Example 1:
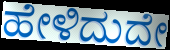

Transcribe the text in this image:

ಹೇಳಿದುದೇ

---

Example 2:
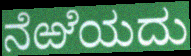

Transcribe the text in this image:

ನೆಱೆಯದು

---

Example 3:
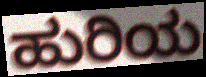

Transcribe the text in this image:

ಹುರಿಯ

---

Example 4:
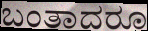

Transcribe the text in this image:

ಬಂತಾದರೂ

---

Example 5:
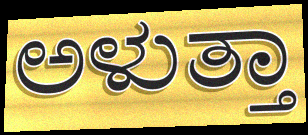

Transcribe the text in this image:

ಅಳುತ್ತಾ